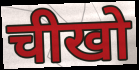
चीखो